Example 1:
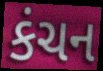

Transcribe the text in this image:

કંચન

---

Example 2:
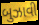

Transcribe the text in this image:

બુઝાવી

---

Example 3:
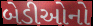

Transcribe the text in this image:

બેડીઓનો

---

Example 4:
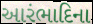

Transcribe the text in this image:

આરંભાદિના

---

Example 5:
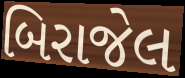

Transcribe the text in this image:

બિરાજેલ